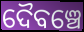
ଦୈବଞ୍ଚେ